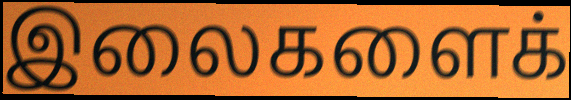
இலைகளைக்